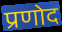
प्रणोद